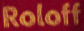
Roloff